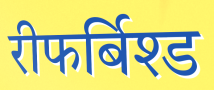
रीफर्बिश्ड